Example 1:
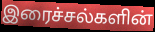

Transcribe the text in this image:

இரைச்சல்களின்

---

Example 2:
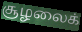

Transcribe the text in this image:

சூழலைக்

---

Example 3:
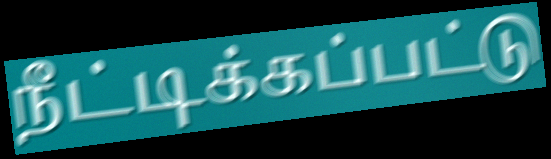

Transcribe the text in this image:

நீட்டிக்கப்பட்டு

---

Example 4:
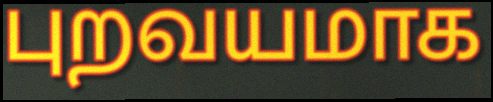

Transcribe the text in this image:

புறவயமாக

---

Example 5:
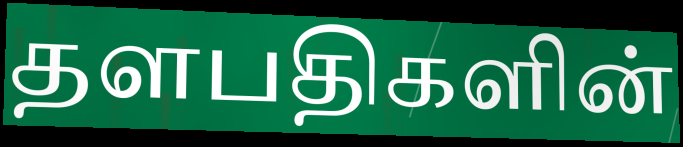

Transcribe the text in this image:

தளபதிகளின்